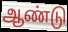
ஆண்டு